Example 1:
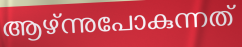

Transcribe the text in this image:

ആഴ്ന്നുപോകുന്നത്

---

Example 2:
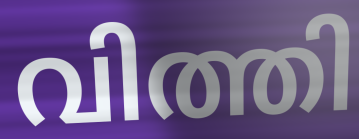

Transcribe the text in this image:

വിത്തി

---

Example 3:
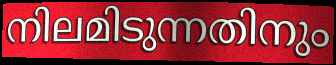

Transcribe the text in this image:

നിലമിടുന്നതിനും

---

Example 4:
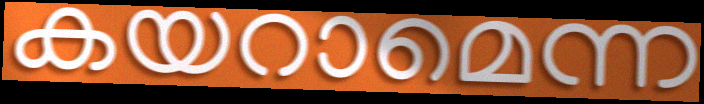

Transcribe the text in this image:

കയറാമെന്ന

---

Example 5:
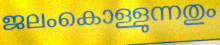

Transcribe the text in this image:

ജലംകൊള്ളുന്നതും